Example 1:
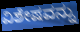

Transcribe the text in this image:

ವಿಶೇಷವನ್ನು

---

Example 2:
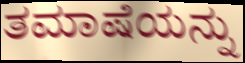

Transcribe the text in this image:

ತಮಾಷೆಯನ್ನು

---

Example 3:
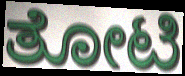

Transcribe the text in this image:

ತೋಟಿ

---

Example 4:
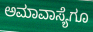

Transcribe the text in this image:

ಅಮಾವಾಸ್ಯೆಗೂ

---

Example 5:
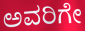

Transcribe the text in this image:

ಅವರಿಗೇ